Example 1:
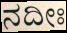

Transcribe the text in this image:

ನದೀಃ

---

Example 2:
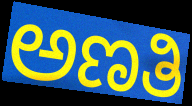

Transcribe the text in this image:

ಅಣತಿ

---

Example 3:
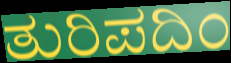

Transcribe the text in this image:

ತುರಿಪದಿಂ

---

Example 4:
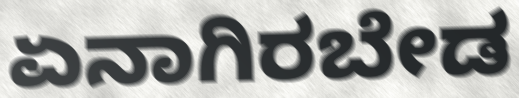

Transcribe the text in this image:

ಏನಾಗಿರಬೇಡ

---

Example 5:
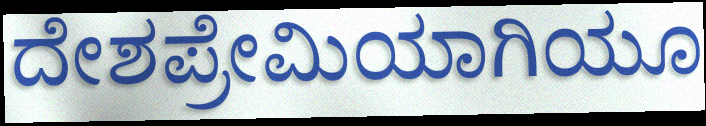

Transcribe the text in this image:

ದೇಶಪ್ರೇಮಿಯಾಗಿಯೂ